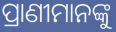
ପ୍ରାଣୀମାନଙ୍କୁ